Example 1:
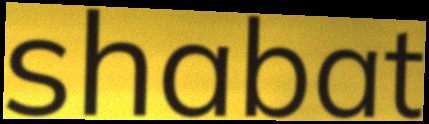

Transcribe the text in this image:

shabat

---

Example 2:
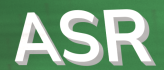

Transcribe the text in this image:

ASR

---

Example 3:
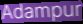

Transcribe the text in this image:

Adampur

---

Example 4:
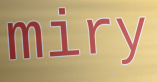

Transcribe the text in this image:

miry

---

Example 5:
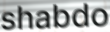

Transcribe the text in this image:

shabdo